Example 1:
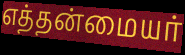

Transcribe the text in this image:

எத்தன்மையர்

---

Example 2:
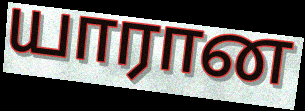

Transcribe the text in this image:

யாரான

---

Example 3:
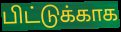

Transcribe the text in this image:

பிட்டுக்காக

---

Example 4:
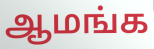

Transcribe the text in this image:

ஆமங்க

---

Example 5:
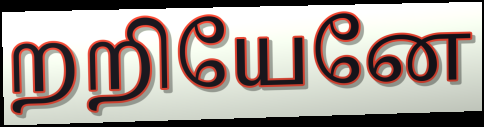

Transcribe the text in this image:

றறியேனே